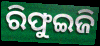
ରିଫୁଇଜି